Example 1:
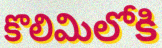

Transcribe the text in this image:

కొలిమిలోకి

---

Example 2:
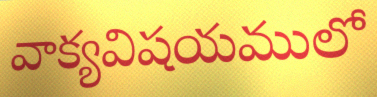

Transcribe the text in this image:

వాక్యవిషయములో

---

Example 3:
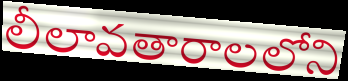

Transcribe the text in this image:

లీలావతారాలలోని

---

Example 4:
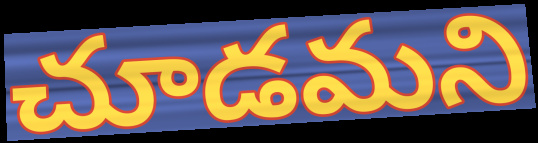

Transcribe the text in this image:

చూడమని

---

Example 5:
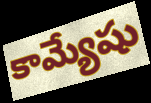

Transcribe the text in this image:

కామ్యేషు